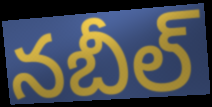
నబీల్